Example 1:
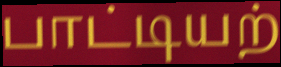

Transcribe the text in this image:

பாட்டியற்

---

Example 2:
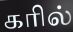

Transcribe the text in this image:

கரில்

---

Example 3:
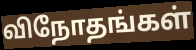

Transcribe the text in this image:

விநோதங்கள்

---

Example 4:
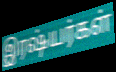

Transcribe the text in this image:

இரஷ்யர்கள்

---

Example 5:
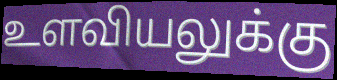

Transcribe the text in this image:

உளவியலுக்கு